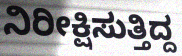
ನಿರೀಕ್ಷಿಸುತ್ತಿದ್ದ